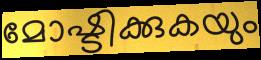
മോഷ്ടിക്കുകയും